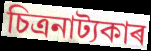
চিত্ৰনাট্যকাৰ